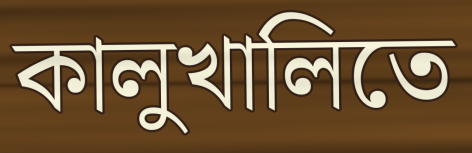
কালুখালিতে